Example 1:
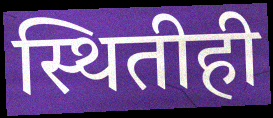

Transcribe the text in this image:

स्थितीही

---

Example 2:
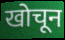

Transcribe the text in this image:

खोचून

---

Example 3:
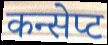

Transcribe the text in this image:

कन्सेप्ट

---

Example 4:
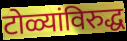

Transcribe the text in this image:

टोळ्यांविरुद्ध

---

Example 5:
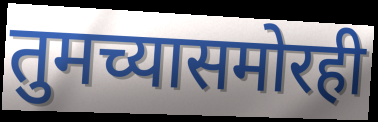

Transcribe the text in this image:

तुमच्यासमोरही